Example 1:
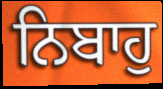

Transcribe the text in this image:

ਨਿਬਾਹੁ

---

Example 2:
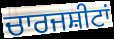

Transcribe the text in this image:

ਚਾਰਜਸ਼ੀਟਾਂ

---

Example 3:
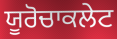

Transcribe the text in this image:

ਯੂਰੋਚਾਕਲੇਟ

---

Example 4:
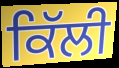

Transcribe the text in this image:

ਕਿੱਲੀ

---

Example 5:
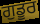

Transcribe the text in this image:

ਗੁਡੂਰ